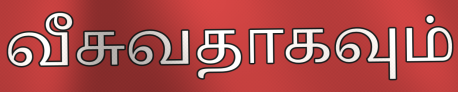
வீசுவதாகவும்